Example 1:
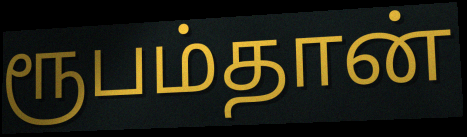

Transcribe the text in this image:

ரூபம்தான்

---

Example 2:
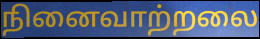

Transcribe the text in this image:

நினைவாற்றலை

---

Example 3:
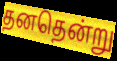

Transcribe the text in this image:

தனதென்று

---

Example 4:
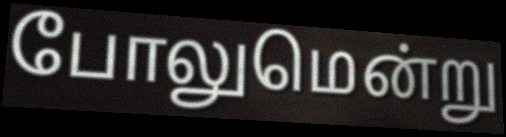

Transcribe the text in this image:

போலுமென்று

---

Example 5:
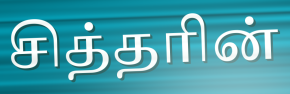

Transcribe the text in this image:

சித்தரின்